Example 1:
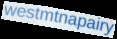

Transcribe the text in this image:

westmtnapairy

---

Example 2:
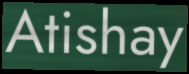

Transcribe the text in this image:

Atishay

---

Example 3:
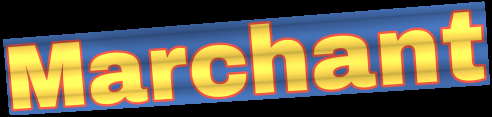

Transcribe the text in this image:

Marchant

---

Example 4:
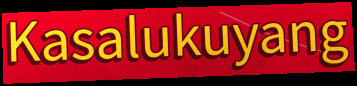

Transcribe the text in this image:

Kasalukuyang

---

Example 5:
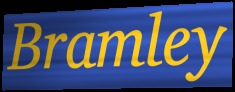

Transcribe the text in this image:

Bramley